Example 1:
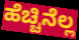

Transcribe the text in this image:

ಹೆಚ್ಚಿನೆಲ್ಲ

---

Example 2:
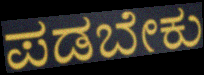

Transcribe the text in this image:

ಪಡಬೇಕು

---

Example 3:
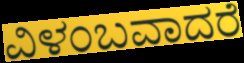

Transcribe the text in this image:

ವಿಳಂಬವಾದರೆ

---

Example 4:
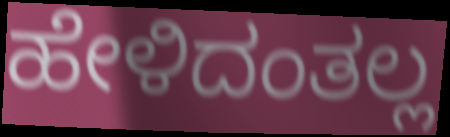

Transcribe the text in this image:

ಹೇಳಿದಂತಲ್ಲ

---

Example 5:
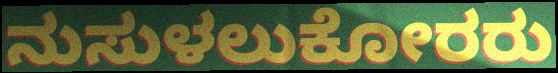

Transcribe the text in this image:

ನುಸುಳಲುಕೋರರು